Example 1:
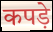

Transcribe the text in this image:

कपड़े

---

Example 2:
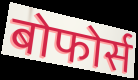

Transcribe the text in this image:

बोफोर्स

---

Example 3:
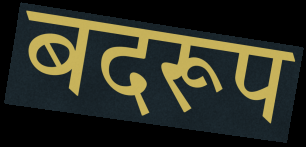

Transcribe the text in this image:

बदरूप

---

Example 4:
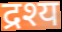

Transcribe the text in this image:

द्रश्य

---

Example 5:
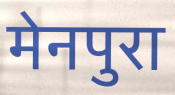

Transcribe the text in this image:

मेनपुरा